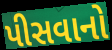
પીસવાનો